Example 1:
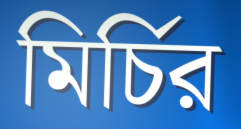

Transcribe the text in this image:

মির্চির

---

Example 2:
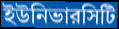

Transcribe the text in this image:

ইউনিভারসিটি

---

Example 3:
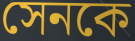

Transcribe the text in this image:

সেনকে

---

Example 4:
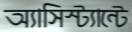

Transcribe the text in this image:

অ্যাসিস্ট্যান্টে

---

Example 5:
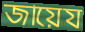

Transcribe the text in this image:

জায়েয